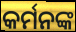
କର୍ମନଙ୍କ